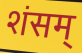
शंसम्